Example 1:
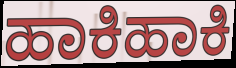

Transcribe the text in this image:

ಹಾಕಿಹಾಕಿ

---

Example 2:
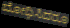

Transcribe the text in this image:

ಬೋಧಿಸಿದರೂ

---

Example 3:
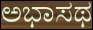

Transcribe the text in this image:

ಅಭಾಸಥ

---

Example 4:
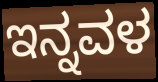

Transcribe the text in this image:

ಇನ್ನವಳ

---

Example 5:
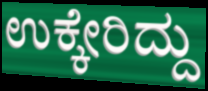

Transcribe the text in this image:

ಉಕ್ಕೇರಿದ್ದು